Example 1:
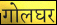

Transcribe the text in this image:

गोलघर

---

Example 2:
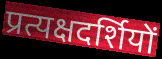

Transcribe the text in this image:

प्रत्यक्षदर्शियों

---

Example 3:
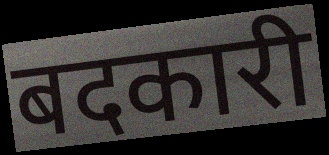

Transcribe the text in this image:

बदकारी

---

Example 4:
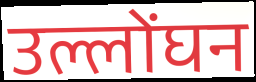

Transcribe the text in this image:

उल्लोंघन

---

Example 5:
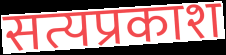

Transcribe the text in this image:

सत्यप्रकाश